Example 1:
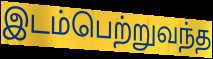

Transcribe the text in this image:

இடம்பெற்றுவந்த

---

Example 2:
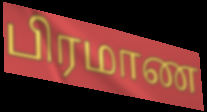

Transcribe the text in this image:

பிரமாண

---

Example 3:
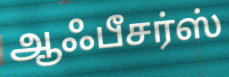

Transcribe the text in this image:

ஆஃபீசர்ஸ்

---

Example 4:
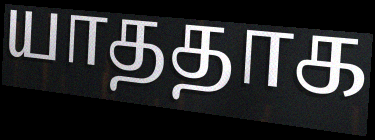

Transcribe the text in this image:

யாததாக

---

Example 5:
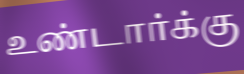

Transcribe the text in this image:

உண்டார்க்கு